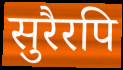
सुरैरपि